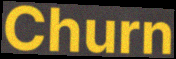
Churn